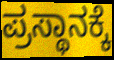
ಪ್ರಸ್ಥಾನಕ್ಕೆ